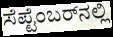
ಸೆಪ್ಟೆಂಬರ್‌ನಲ್ಲಿ